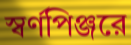
স্বর্ণপিঞ্জরে